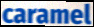
caramel